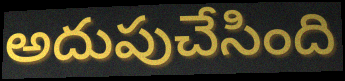
అదుపుచేసింది